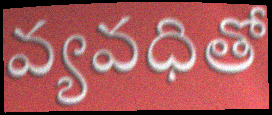
వ్యవధితో